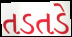
તડતડે